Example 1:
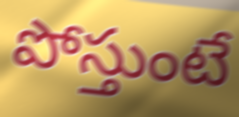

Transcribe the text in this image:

పోస్తుంటే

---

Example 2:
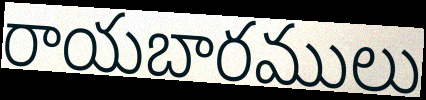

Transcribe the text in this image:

రాయబారములు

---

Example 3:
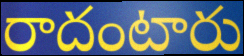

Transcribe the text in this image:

రాదంటారు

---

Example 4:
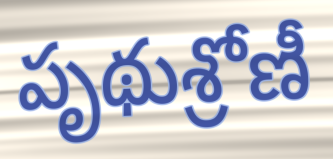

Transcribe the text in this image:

పృథుశ్రోణీ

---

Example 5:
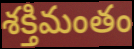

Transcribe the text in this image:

శక్తిమంతం